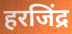
हरजिंद्र